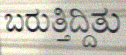
ಬರುತ್ತಿದ್ದಿತು